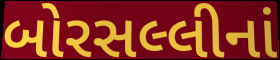
બોરસલ્લીનાં